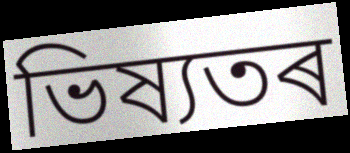
ভিষ্যতৰ